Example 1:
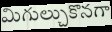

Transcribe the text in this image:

మిగుల్చుకొనగా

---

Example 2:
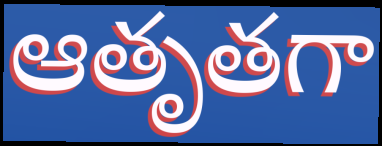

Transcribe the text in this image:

ఆతృతగా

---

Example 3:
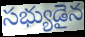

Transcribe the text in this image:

సభ్యుడైన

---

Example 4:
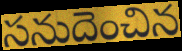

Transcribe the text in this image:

సనుదెంచిన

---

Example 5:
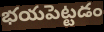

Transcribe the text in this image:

భయపెట్టడం